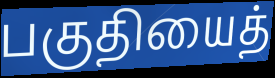
பகுதியைத்